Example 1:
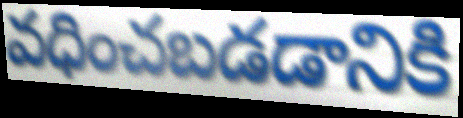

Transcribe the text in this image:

వధించబడడానికి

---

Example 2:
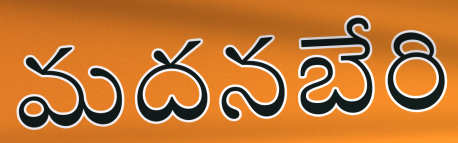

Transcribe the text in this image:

మదనబేరి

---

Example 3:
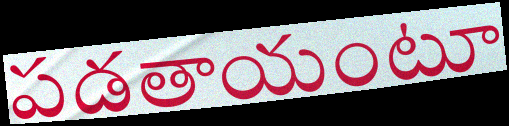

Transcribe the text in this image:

పడతాయంటూ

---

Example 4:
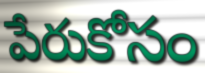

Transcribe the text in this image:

పేరుకోసం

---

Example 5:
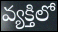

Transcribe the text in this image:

వ్యక్తిలో